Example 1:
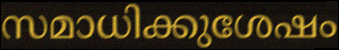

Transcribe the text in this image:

സമാധിക്കുശേഷം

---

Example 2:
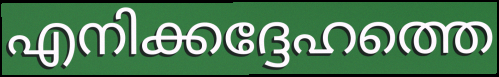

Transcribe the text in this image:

എനിക്കദ്ദേഹത്തെ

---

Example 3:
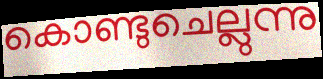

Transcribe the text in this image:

കൊണ്ടുചെല്ലുന്നു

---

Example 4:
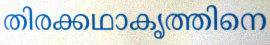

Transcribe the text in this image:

തിരക്കഥാകൃത്തിനെ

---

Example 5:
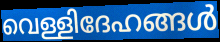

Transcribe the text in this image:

വെള്ളിദേഹങ്ങൾ